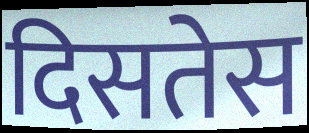
दिसतेस